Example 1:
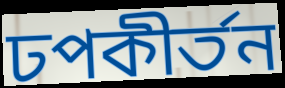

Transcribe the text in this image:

ঢপকীর্তন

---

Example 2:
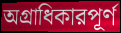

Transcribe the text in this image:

অগ্রাধিকারপূর্ণ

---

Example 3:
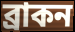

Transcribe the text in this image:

ব্রাকন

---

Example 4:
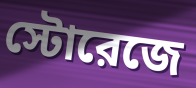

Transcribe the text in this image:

স্টোরেজে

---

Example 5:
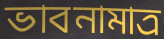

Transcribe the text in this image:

ভাবনামাত্র